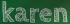
karen